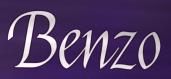
Benzo